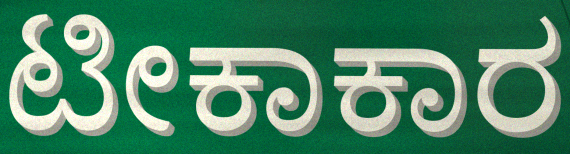
ಟೀಕಾಕಾರ